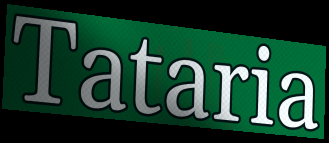
Tataria